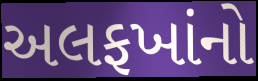
અલફખાંનો